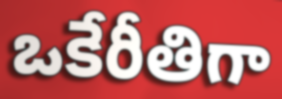
ఒకేరీతిగా